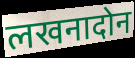
लखनादोन